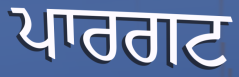
ਪਾਰਗਟ